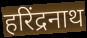
हरिंद्रनाथ